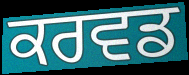
ਕਰਵਡ